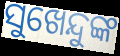
ସୁଖେନ୍ଦୁଙ୍କ